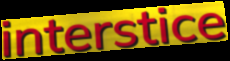
interstice